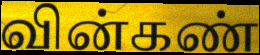
வின்கண்